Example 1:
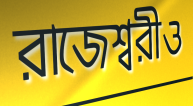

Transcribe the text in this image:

রাজেশ্বরীও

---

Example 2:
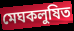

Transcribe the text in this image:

মেঘকলুষিত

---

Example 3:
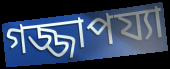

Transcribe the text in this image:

গজ্জাপয্যা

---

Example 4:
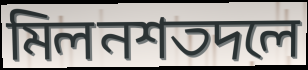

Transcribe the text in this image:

মিলনশতদলে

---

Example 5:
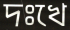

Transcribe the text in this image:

দঃখে